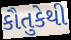
કૌતુકેથી